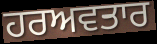
ਹਰਅਵਤਾਰ